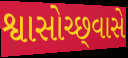
શ્વાસોચ્છ્‍વાસે